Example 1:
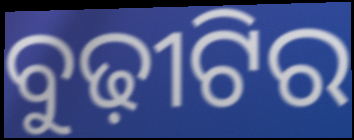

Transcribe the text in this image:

ବୁଢ଼ୀଟିର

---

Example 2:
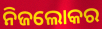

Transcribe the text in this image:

ନିଜଲୋକର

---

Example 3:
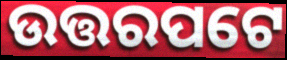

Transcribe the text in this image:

ଉତ୍ତରପଟେ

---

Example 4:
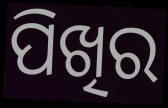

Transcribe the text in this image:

ପିଖିର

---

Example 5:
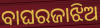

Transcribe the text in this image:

ବାଘରଜାଝିଅ